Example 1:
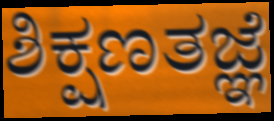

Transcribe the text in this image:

ಶಿಕ್ಷಣತಜ್ಞೆ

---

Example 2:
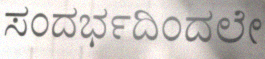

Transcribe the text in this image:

ಸಂದರ್ಭದಿಂದಲೇ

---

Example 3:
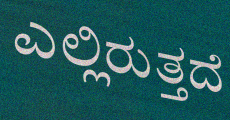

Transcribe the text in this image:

ಎಲ್ಲಿರುತ್ತದೆ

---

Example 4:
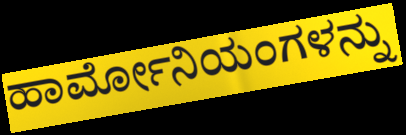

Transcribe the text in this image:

ಹಾರ್ಮೋನಿಯಂಗಳನ್ನು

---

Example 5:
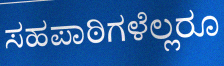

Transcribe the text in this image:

ಸಹಪಾಠಿಗಳೆಲ್ಲರೂ